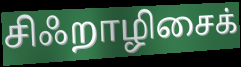
சிஃறாழிசைக்